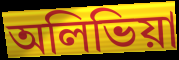
অলিভিয়া